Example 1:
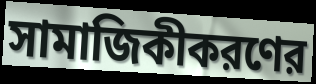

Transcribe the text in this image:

সামাজিকীকরণের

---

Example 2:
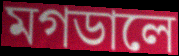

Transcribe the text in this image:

মগডালে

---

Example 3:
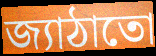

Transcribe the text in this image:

জ্যাঠাতো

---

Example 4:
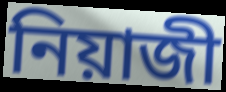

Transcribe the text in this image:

নিয়াজী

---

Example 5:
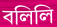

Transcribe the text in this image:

বলিলি